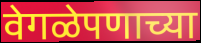
वेगळेपणाच्या